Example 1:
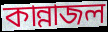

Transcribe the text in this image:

কান্নাজল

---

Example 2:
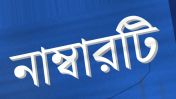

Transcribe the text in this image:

নাম্বারটি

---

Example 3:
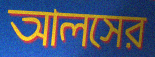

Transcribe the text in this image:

আলসের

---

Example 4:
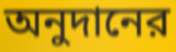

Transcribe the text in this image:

অনুদানের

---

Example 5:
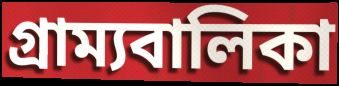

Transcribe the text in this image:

গ্রাম্যবালিকা